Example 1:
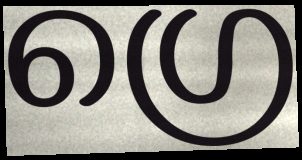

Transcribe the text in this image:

ഗ്രെ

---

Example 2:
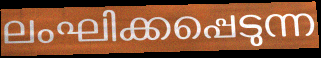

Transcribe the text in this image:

ലംഘിക്കപ്പെടുന്ന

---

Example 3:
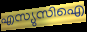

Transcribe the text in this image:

എസ്യുസിഐ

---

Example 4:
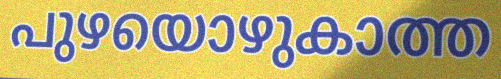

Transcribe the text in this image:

പുഴയൊഴുകാത്ത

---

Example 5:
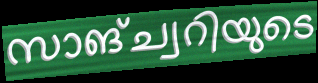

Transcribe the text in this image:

സാങ്ച്വറിയുടെ